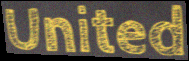
United